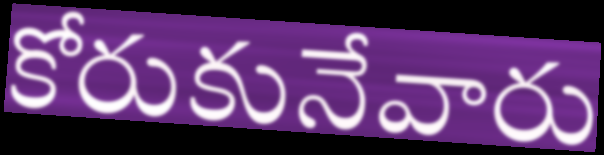
కోరుకునేవారు